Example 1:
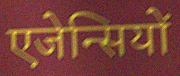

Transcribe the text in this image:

एजेन्सियों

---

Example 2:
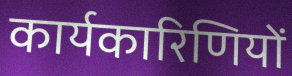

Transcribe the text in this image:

कार्यकारिणियों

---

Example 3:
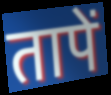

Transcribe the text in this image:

तापें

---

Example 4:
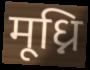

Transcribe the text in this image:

मूध्नि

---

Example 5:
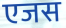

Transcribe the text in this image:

एजस